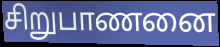
சிறுபாணனை